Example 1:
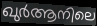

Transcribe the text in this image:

ഖുർആനിലെ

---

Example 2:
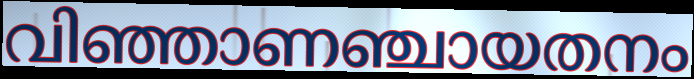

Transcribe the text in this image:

വിഞ്ഞാണഞ്ചായതനം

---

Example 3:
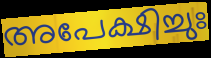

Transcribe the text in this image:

അപേക്ഷിച്ചുഃ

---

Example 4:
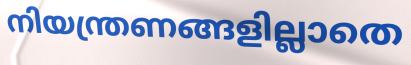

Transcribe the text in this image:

നിയന്ത്രണങ്ങളില്ലാതെ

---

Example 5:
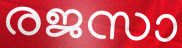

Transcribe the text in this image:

രജസാ